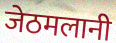
जेठमलानी